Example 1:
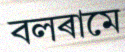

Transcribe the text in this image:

বলৰামে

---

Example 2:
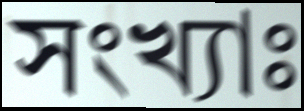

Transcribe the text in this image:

সংখ্যাঃ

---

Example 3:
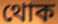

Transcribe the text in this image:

থোক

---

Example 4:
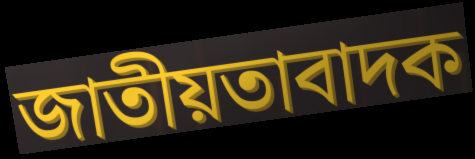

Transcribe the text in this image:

জাতীয়তাবাদক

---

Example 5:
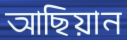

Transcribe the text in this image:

আছিয়ান